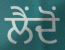
ਲੈਂਦੋਂ